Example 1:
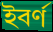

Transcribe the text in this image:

ইবৰ্ণ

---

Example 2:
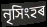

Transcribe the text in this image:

নৃসিংহৰ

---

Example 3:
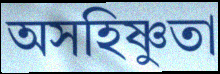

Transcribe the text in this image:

অসহিষ্ণুতা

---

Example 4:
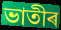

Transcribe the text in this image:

ভাতীৰ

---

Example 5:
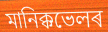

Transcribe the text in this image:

মানিক্কভেলৰ